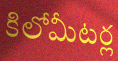
కిలోమీటర్ల